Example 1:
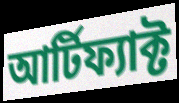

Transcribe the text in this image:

আর্টিফ্যাক্ট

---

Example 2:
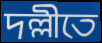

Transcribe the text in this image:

দল্লীতে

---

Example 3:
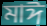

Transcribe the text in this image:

মাঈ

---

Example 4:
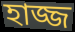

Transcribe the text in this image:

হাজ্জ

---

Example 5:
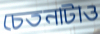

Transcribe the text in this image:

চেতনাটাও